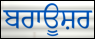
ਬਰਾਊਸ਼ਰ